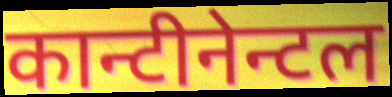
कान्टीनेन्टल